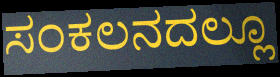
ಸಂಕಲನದಲ್ಲೂ